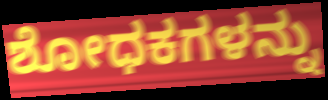
ಶೋಧಕಗಳನ್ನು